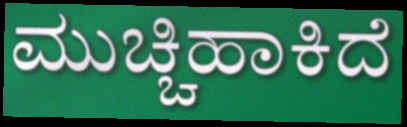
ಮುಚ್ಚಿಹಾಕಿದೆ